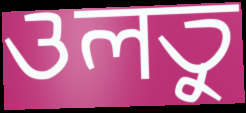
ওলতু